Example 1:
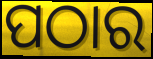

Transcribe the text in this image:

ପଠାର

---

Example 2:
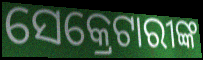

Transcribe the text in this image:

ସେକ୍ରେଟାରୀଙ୍କ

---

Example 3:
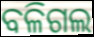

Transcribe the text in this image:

ବଳିଗଲ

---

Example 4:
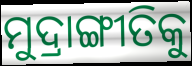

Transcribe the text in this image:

ମୁଦ୍ରାଙ୍ଗୀତିକୁ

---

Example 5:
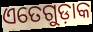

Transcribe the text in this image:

ଏତେଗୁଡ଼ାକ